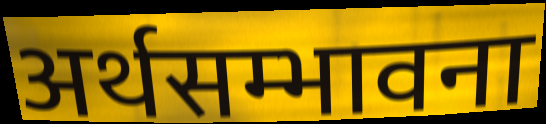
अर्थसम्भावना